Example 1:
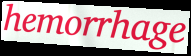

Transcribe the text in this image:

hemorrhage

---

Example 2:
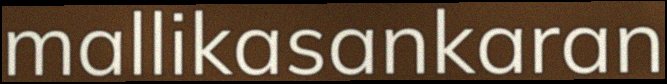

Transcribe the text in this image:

mallikasankaran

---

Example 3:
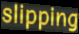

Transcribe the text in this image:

slipping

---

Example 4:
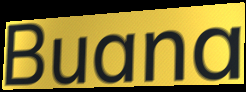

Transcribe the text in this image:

Buana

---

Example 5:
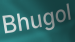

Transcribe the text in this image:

Bhugol